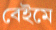
বেইমে